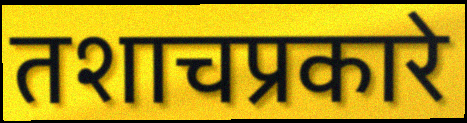
तशाचप्रकारे